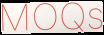
MOQs